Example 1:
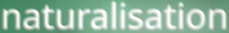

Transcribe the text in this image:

naturalisation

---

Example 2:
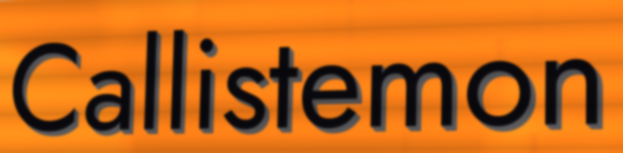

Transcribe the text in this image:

Callistemon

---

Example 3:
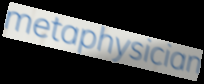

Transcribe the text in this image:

metaphysician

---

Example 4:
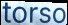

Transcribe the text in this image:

torso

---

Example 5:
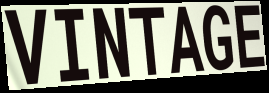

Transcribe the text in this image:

VINTAGE